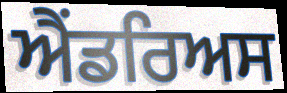
ਐਂਡਰਿਅਸ